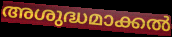
അശുദ്ധമാക്കൽ